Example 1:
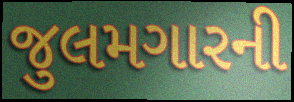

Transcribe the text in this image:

જુલમગારની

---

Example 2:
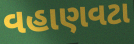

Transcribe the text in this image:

વહાણવટા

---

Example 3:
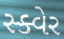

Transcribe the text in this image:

સ્ક્વેર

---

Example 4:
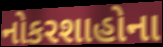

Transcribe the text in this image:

નોકરશાહોના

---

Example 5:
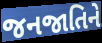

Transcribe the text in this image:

જનજાતિને